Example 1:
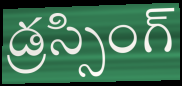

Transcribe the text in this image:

డ్రస్సింగ్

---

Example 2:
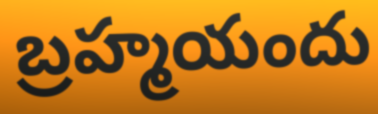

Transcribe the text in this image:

బ్రహ్మయందు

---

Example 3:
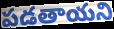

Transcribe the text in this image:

పడతాయని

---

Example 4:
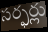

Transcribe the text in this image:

సర్ఫర్లు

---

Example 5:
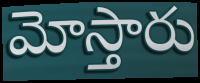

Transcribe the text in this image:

మోస్తారు